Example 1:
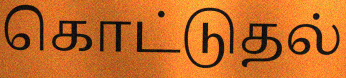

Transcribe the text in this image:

கொட்டுதல்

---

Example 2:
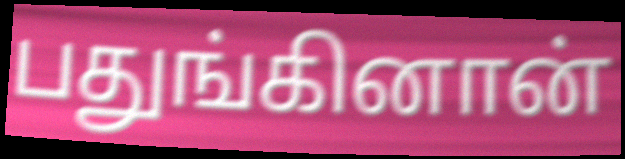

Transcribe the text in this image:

பதுங்கினான்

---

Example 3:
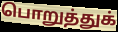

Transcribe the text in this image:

பொறுத்துக்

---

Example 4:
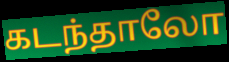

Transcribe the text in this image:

கடந்தாலோ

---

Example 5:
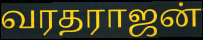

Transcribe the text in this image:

வரதராஜன்